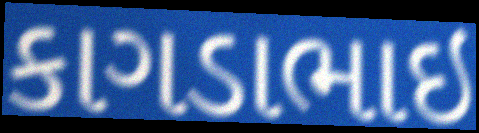
કાગડાભાઇ